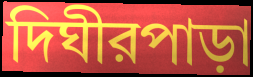
দিঘীরপাড়া